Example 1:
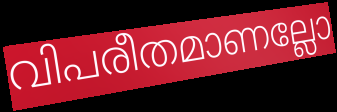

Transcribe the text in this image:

വിപരീതമാണല്ലോ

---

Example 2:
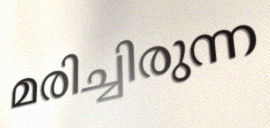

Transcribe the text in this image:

മരിച്ചിരുന്ന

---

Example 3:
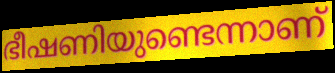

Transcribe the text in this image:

ഭീഷണിയുണ്ടെന്നാണ്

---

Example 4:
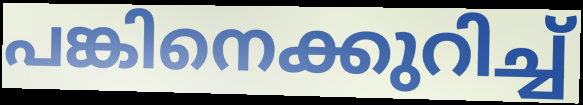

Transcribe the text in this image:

പങ്കിനെക്കുറിച്ച്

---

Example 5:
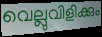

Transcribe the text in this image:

വെല്ലുവിളിക്കും